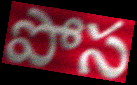
పోస